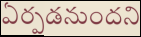
ఏర్పడనుందని